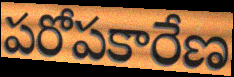
పరోపకారేణ